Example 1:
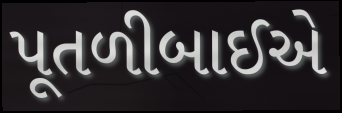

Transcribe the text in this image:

પૂતળીબાઈએ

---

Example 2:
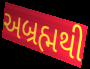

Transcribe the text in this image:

અબ્રહ્મથી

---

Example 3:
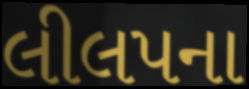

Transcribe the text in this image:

લીલપના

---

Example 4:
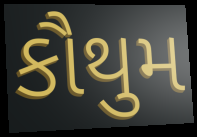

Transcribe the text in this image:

કૌથુમ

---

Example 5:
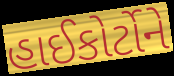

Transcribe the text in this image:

હાઈકોર્ટોને